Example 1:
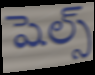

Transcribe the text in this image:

షెల్స్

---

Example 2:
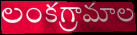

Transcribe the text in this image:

లంకగ్రామాల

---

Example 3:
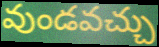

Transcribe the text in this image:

వుండవచ్చు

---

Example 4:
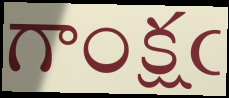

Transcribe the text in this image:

గాంక్షఁ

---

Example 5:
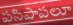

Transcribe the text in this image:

పసిపాపలూ